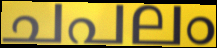
ചപലം